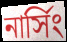
নার্সিং